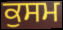
ਕੁਸਮ